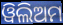
ୱିଲିଅମ